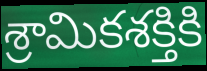
శ్రామికశక్తికి